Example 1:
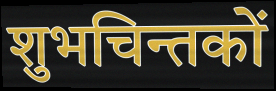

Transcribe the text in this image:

शुभचिन्तकों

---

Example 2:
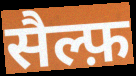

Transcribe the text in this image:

सैल्फ़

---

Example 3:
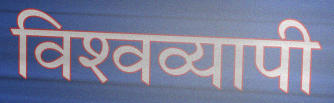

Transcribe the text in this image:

विश्‍वव्यापी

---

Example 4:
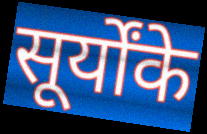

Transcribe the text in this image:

सूर्योंके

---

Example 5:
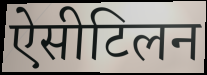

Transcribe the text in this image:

ऐसीटिलन